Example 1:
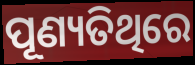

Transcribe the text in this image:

ପୂଣ୍ୟତିଥିରେ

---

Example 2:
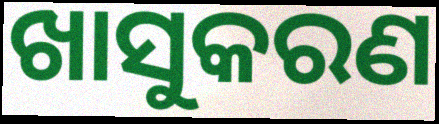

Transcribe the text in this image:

ଖାସୁକରଣ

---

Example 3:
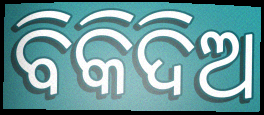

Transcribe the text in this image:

ବିକିଦିଅ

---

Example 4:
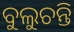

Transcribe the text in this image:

ବୁଲୁଚନ୍ତି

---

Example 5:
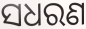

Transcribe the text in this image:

ସଧରଣ